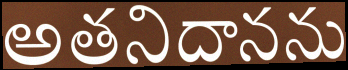
అతనిదానను